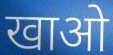
खाओ